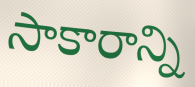
సాకారాన్ని